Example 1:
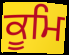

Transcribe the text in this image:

ਕੂਮਿ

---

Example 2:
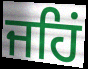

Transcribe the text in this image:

ਜਹਿਂ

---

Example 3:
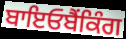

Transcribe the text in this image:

ਬਾਇਓਬੈਂਕਿੰਗ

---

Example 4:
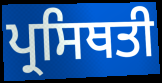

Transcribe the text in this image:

ਪ੍ਰਸਿਥਤੀ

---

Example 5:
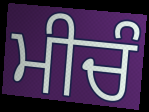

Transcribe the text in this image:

ਮੀਚੰ